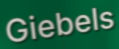
Giebels